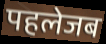
पहलेजब